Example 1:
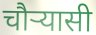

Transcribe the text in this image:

चौर्‍यासी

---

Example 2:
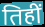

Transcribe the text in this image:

तिहीं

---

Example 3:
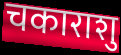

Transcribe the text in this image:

चकाराशु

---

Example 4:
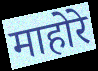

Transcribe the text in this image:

माहोरे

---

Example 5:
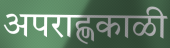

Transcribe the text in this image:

अपराह्णकाळी